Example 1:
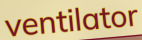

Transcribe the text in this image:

ventilator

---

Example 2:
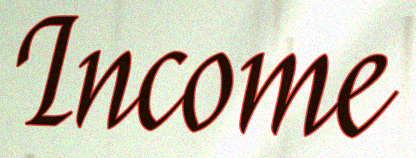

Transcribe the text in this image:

Income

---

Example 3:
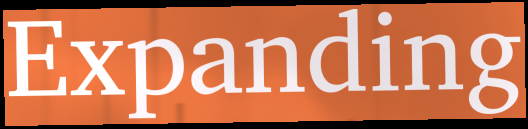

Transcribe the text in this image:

Expanding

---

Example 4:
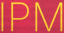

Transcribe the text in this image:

IPM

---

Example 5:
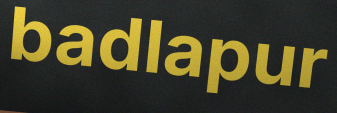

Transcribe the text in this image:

badlapur